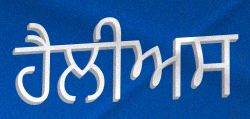
ਹੈਲੀਅਸ